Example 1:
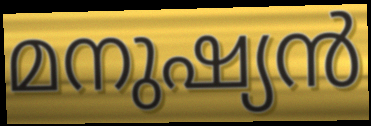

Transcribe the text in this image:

മനുഷ്യൻ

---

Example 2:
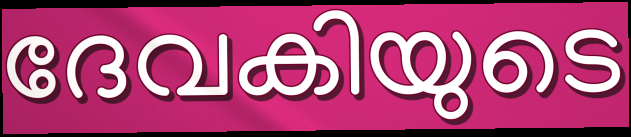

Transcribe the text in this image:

ദേവകിയുടെ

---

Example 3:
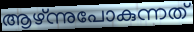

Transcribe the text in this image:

ആഴ്ന്നുപോകുന്നത്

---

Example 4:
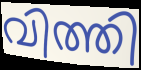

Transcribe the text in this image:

വിത്തി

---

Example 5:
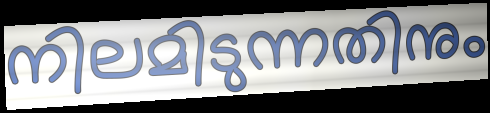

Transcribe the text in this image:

നിലമിടുന്നതിനും